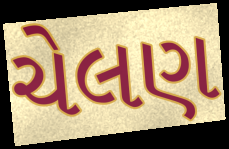
ચેલણ